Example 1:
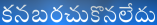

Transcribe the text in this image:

కనబరచుకొనలేదు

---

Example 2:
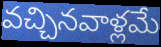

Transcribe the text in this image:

వచ్చినవాళ్లమే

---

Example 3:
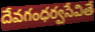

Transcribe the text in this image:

దేవగంధర్వసేవితే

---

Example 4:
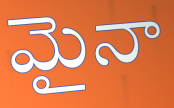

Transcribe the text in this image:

మైనా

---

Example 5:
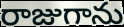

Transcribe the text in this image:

రాజుగాను